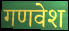
गणवेश